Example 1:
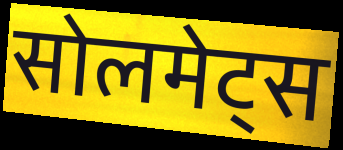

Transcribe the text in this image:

सोलमेट्स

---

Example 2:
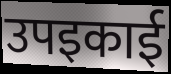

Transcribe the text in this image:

उपइकाई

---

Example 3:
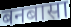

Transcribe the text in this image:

बनबासा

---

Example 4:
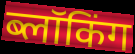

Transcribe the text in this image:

ब्लॉकिंग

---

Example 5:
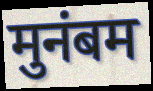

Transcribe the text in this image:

मुनंबम